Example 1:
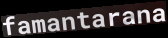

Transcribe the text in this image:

famantarana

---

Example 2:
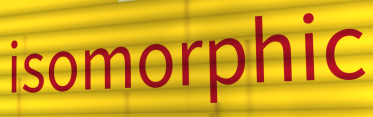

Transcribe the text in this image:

isomorphic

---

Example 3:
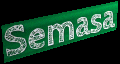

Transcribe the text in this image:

Semasa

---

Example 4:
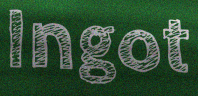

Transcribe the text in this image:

Ingot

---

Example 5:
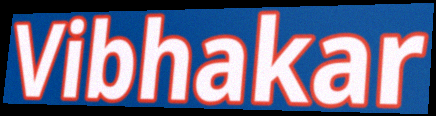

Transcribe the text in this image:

Vibhakar